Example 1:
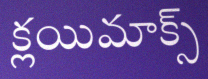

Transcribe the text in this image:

క్లయిమాక్స్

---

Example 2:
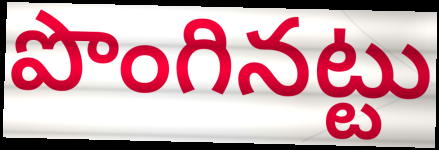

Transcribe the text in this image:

పొంగినట్టు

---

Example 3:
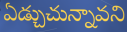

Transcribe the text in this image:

ఏడ్చుచున్నావని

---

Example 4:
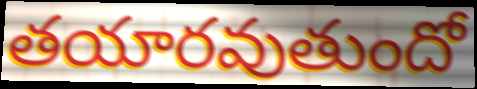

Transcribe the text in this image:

తయారవుతుందో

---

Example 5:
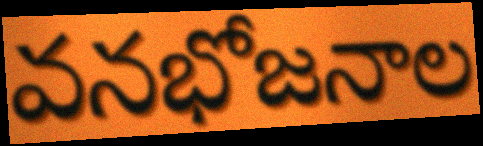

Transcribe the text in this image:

వనభోజనాల